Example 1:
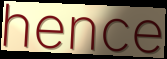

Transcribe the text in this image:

hence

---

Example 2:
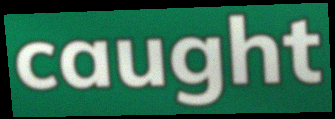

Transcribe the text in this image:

caught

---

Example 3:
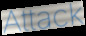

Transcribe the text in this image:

Attack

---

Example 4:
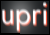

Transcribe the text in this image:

upri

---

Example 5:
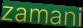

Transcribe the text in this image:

zamani